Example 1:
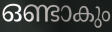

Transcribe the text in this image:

ഒണ്ടാകും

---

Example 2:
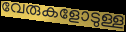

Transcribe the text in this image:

വേരുകളോടുള്ള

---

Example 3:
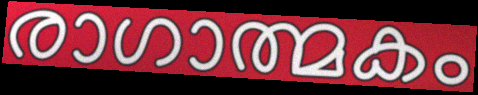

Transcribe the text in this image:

രാഗാത്മകം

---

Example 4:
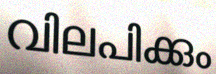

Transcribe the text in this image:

വിലപിക്കും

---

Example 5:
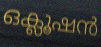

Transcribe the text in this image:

ഒക്ലൂഷൻ